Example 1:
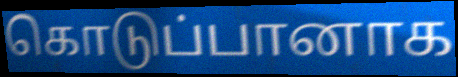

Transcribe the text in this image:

கொடுப்பானாக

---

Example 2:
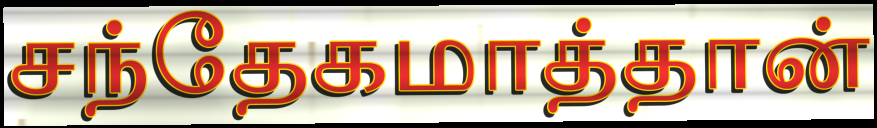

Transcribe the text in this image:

சந்தேகமாத்தான்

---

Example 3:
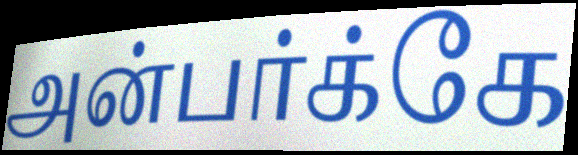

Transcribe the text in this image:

அன்பர்க்கே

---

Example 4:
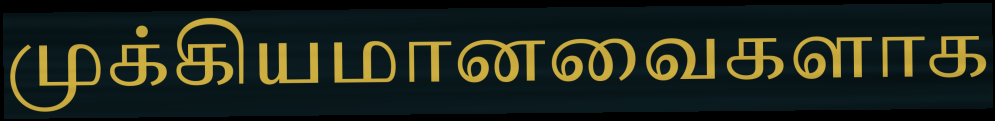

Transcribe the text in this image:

முக்கியமானவைகளாக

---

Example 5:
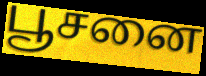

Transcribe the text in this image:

பூசனை